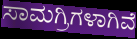
ಸಾಮಗ್ರಿಗಳಾಗಿವೆ